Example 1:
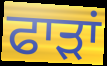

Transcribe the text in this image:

ਫਾੜਾਂ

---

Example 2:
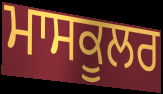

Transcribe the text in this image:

ਮਾਸਕੂਲਰ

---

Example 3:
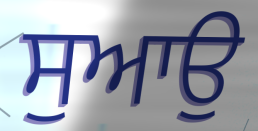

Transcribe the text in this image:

ਸੁਆਉ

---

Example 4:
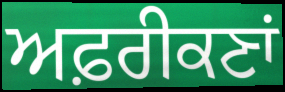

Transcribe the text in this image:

ਅਫ਼ਰੀਕਣਾਂ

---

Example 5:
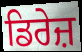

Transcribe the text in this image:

ਡਿਰੇਜ਼